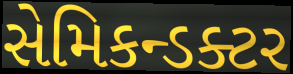
સેમિકન્ડક્ટર